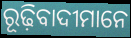
ରୂଢ଼ିବାଦୀମାନେ